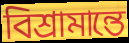
বিশ্রামান্তে